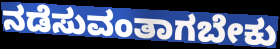
ನಡೆಸುವಂತಾಗಬೇಕು